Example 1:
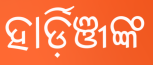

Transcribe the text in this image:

ହାର୍ଡ଼ିଞ୍ଜଙ୍କ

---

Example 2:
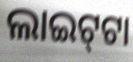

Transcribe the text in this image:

ଲାଇଟ୍‍ଟା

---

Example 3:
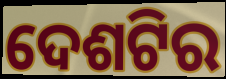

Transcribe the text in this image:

ଦେଶଟିର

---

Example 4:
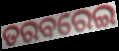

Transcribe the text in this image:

ତରବରେଇ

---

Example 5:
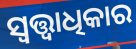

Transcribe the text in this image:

ସ୍ୱତ୍ତ୍ୱାଧିକାର